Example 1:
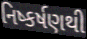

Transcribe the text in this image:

નિષ્કર્ષણથી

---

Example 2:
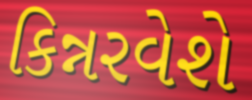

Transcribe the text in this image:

કિન્નરવેશે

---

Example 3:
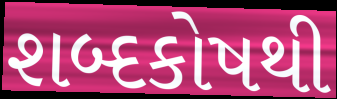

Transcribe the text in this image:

શબ્દકોષથી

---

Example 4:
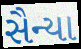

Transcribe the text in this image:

સૈન્યા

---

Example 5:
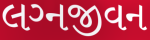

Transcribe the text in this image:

લગ્‍નજીવન